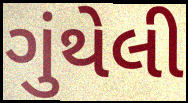
ગુંથેલી